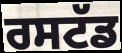
ਰਸਟੱਡ